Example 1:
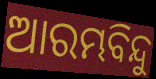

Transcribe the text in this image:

ଆରମ୍ଭବିନ୍ଦୁ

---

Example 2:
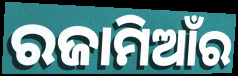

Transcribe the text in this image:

ରଜାମିଆଁର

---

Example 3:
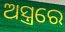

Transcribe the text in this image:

ଅସ୍ତ୍ରରେ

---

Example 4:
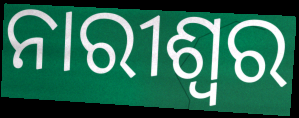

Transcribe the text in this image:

ନାରୀଶ୍ବର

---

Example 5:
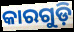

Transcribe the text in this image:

କାରଗୁଡ଼ି